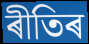
ৰীতিৰ